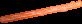
പെസഹാഘോഷവേളയിൽ